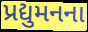
પ્રદ્યુમનના